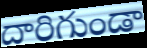
దారిగుండా